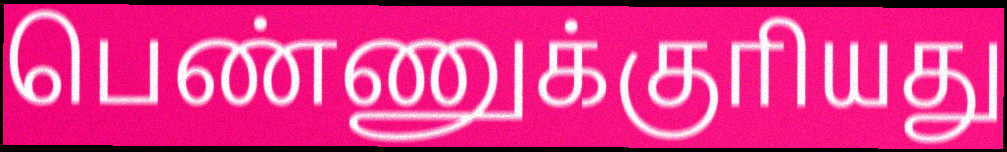
பெண்ணுக்குரியது